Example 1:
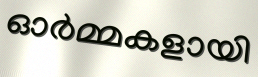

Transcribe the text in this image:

ഓർമ്മകളായി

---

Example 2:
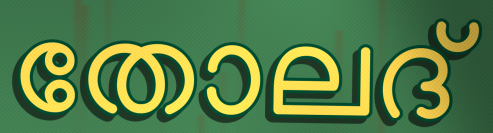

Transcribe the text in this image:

തോലദ്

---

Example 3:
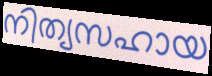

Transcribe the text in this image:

നിത്യസഹായ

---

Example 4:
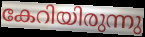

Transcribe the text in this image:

കേറിയിരുന്നു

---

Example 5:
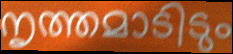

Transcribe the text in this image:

നൃത്തമാടിടും